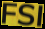
FSI